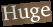
Huge